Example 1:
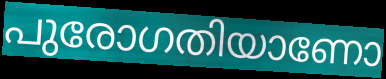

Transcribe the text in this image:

പുരോഗതിയാണോ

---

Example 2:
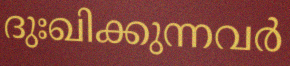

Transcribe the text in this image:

ദുഃഖിക്കുന്നവർ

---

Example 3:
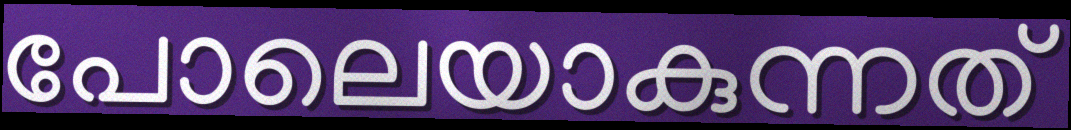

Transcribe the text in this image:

പോലെയാകുന്നത്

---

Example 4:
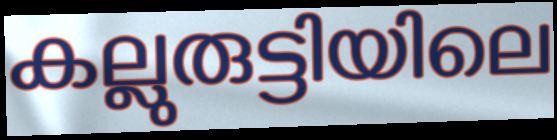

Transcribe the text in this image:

കല്ലുരുട്ടിയിലെ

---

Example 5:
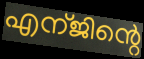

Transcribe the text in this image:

എന്ജിന്റെ